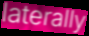
laterally